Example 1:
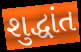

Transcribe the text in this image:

શુદ્ધાંત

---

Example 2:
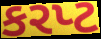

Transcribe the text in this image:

કરપ્ટ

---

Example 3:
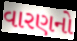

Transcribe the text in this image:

વારણનો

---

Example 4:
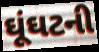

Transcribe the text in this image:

ઘૂંઘટની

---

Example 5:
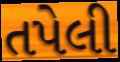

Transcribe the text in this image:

તપેલી